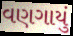
વણગાયું